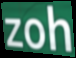
zoh